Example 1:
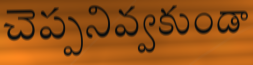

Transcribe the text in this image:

చెప్పనివ్వకుండా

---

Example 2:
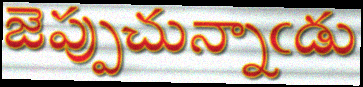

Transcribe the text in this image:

జెప్పుచున్నాఁడు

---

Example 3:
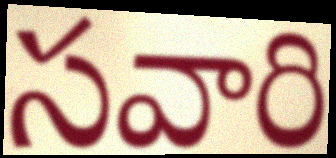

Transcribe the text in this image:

సవారి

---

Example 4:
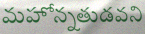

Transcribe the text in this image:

మహోన్నతుడవని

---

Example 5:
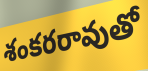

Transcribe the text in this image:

శంకరరావుతో